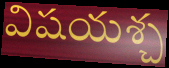
విషయశ్చ